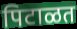
पिटाळत